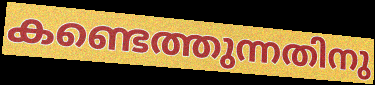
കണ്ടെത്തുന്നതിനു